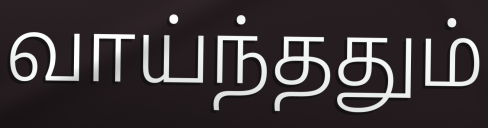
வாய்ந்ததும்